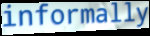
informally